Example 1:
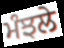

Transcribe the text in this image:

ਮੰਝਲੇ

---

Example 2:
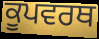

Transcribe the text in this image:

ਕੂਪਵਰਥ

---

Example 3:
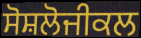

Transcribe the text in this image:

ਸੋਸ਼ਲੋਜੀਕਲ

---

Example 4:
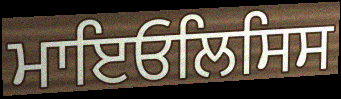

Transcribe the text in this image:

ਮਾਇਓਲਿਸਿਸ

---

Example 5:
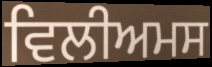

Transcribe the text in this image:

ਵਿਲੀਅਮਸ